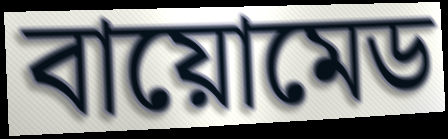
বায়োমেড